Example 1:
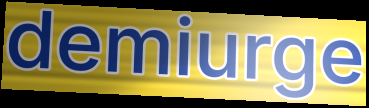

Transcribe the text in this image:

demiurge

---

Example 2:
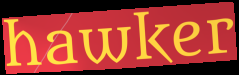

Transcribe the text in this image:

hawker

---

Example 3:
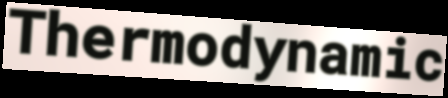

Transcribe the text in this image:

Thermodynamic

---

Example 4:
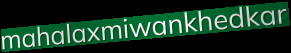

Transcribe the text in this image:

mahalaxmiwankhedkar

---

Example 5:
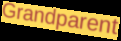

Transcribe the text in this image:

Grandparent